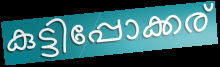
കുട്ടിപ്പോക്കര്